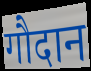
गौदान